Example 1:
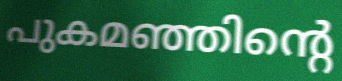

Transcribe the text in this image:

പുകമഞ്ഞിന്റെ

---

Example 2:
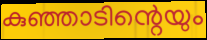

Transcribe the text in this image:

കുഞ്ഞാടിന്റെയും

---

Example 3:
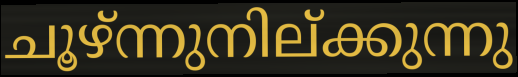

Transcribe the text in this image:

ചൂഴ്ന്നുനില്ക്കുന്നു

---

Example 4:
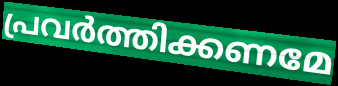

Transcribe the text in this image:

പ്രവർത്തിക്കണമേ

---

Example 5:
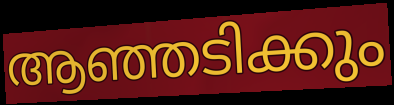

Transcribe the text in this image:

ആഞ്ഞടിക്കും